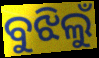
ବୁଝିଲୁଁ